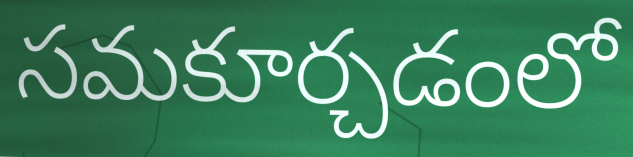
సమకూర్చడంలో